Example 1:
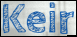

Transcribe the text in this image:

Keir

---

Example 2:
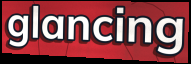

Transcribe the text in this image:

glancing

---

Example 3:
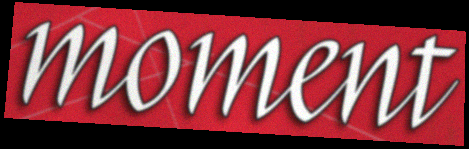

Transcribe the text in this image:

moment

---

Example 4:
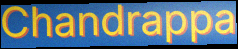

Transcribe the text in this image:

Chandrappa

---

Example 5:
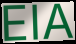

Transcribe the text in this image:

EIA